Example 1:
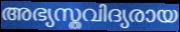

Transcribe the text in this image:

അഭ്യസ്തവിദ്യരായ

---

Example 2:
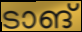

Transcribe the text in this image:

ടാങ്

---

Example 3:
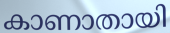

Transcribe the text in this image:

കാണാതായി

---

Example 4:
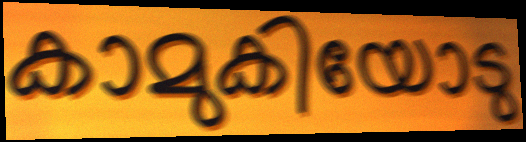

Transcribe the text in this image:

കാമുകിയോടു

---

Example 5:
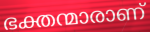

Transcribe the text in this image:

ഭക്തന്മാരാണ്